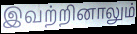
இவற்றினாலும்